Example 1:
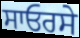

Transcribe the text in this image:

ਸਾਓਰਸੇ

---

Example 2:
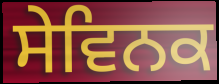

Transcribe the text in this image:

ਸੇਵਿਨਕ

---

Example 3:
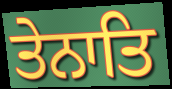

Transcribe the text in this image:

ਤੇਨਾਤਿ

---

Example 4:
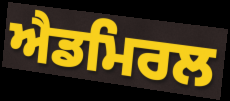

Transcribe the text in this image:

ਐਡਮਿਰਲ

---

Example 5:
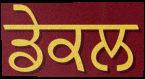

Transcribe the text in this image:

ਡੇਕਲ